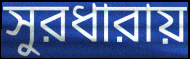
সুরধারায়